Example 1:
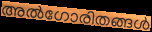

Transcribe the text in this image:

അൽഗോരിതങ്ങൾ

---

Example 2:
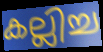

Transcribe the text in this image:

കല്ലിച്ച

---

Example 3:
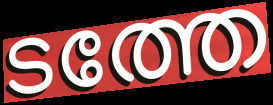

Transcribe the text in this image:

ടത്തേ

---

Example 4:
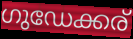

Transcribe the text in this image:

ഗുഡേക്കര്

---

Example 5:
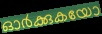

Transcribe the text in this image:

ഓർക്കുകയോ